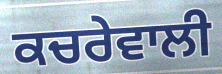
ਕਚਰੇਵਾਲੀ